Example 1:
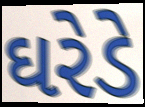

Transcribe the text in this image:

ઘરેડે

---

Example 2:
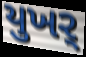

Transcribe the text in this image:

યુખર્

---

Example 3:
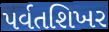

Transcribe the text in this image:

પર્વતશિખર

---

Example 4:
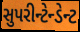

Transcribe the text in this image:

સુપરીન્ટેન્ડેન્ટ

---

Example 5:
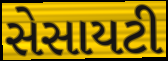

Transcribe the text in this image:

સેસાયટી